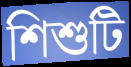
শিশুটি